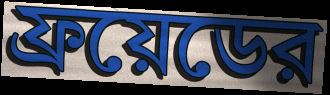
ফ্রয়েডের